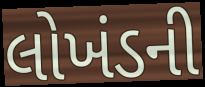
લોખંડની